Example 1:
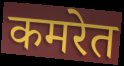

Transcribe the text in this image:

कमरेत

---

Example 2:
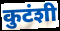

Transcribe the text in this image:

कुटंशी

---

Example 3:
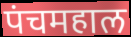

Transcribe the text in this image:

पंचमहाल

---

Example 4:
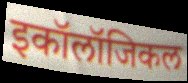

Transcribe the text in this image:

इकॉलॉजिकल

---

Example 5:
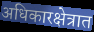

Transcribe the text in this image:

अधिकारक्षेत्रात